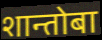
शान्तोबा